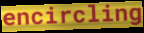
encircling